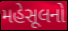
મહેસૂલનો